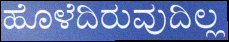
ಹೊಳೆದಿರುವುದಿಲ್ಲ